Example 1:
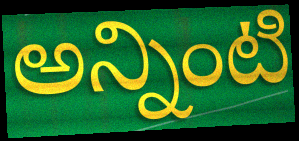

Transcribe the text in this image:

అన్నింటి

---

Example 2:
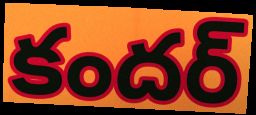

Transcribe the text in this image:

కందర్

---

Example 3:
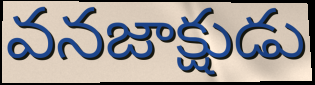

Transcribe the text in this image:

వనజాక్షుడు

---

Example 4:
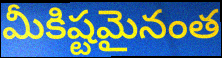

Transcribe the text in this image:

మీకిష్టమైనంత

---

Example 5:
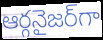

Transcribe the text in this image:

ఆర్గనైజర్‌గా